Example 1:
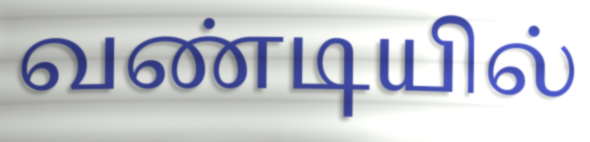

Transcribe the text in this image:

வண்டியில்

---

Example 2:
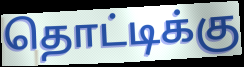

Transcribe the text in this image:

தொட்டிக்கு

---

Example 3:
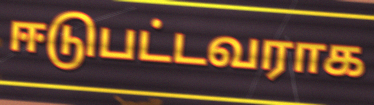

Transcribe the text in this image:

ஈடுபட்டவராக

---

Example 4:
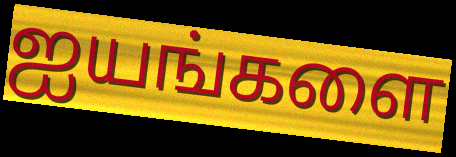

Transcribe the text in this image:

ஐயங்களை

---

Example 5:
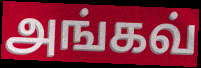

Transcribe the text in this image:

அங்கவ்